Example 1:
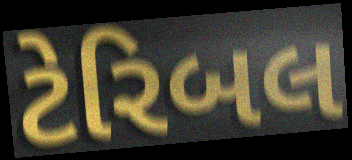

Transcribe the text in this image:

ટેરિબલ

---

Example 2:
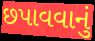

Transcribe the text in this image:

છપાવવાનું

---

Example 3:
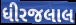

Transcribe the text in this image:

ધીરજલાલ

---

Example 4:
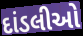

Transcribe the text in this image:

દાંડલીઓ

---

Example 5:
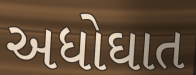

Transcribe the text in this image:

અધોઘાત